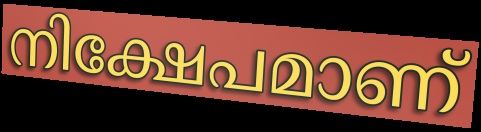
നിക്ഷേപമാണ്